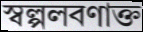
স্বল্পলবণাক্ত